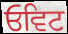
ਓਵਿਟ